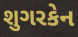
શુગરકેન